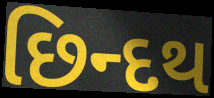
છિન્દથ